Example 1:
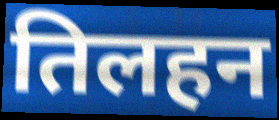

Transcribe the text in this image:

तिलहन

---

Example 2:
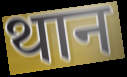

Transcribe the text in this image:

थान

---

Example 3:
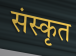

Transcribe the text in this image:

संस्‍कृत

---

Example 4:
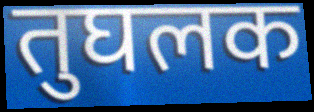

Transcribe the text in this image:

तुघलक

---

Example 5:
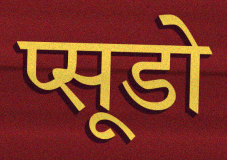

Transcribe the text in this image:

प्सूडो